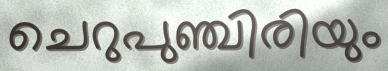
ചെറുപുഞ്ചിരിയും